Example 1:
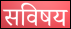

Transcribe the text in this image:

सविषय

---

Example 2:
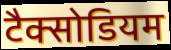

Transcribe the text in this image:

टैक्सोडियम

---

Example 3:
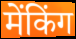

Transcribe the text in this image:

मेंकिंग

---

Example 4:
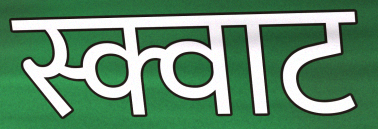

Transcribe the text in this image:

स्क्वाट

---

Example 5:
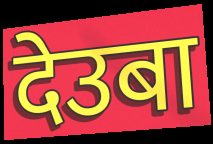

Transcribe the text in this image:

देउबा